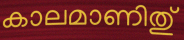
കാലമാണിതു്